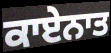
ਕਾਏਨਾਤ